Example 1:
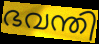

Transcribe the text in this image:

ഭവന്തി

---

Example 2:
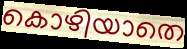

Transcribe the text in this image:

കൊഴിയാതെ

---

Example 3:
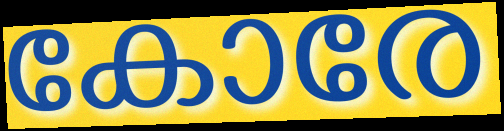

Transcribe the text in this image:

കോരേ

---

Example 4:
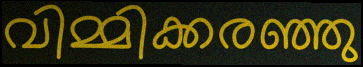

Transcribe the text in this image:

വിമ്മിക്കരഞ്ഞു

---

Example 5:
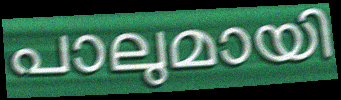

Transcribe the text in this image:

പാലുമായി